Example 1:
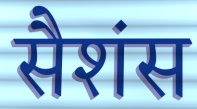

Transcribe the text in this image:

सैशंस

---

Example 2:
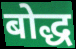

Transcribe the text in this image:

बोद्ध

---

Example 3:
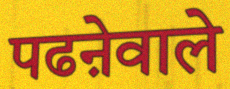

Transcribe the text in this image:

पढऩेवाले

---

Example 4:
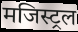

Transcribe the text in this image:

मजिस्ट्रल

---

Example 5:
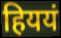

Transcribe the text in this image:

हिययं